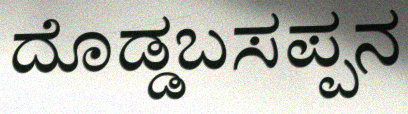
ದೊಡ್ಡಬಸಪ್ಪನ